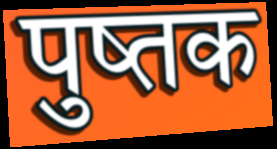
पुष्तक